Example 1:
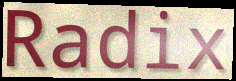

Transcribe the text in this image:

Radix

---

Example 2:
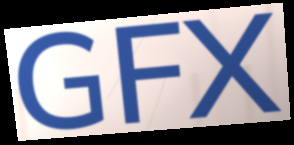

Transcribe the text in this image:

GFX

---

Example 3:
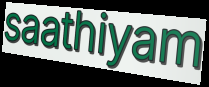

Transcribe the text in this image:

saathiyam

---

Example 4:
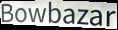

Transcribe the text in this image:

Bowbazar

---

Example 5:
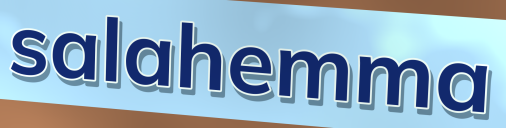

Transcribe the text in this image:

salahemma